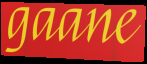
gaane